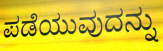
ಪಡೆಯುವುದನ್ನು